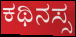
ಕಥಿನಸ್ಸ